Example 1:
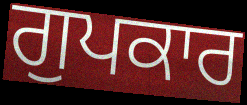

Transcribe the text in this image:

ਗੁਪਕਾਰ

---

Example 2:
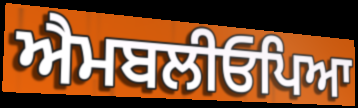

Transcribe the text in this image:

ਐਮਬਲੀਓਪਿਆ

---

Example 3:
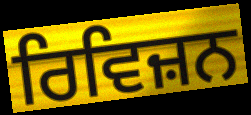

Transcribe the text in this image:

ਰਿਵਿਜ਼ਨ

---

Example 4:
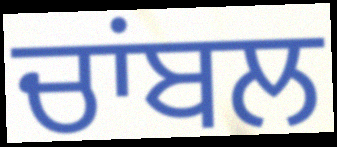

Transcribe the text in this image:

ਚਾਂਬਲ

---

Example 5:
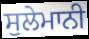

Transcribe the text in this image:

ਸੁਲੇਮਾਨੀ